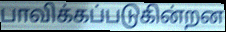
பாவிக்கப்படுகின்றன